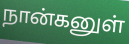
நான்கனுள்